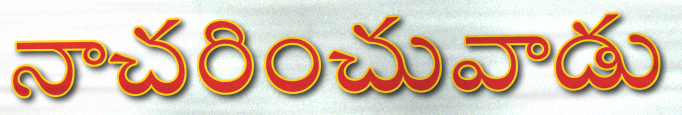
నాచరించువాడు